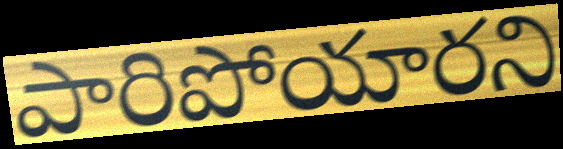
పారిపోయారని